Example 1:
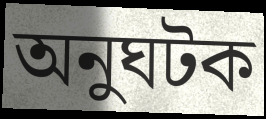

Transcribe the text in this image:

অনুঘটক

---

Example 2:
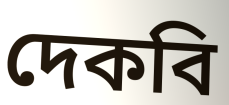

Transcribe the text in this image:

দেকবি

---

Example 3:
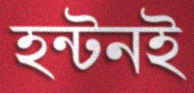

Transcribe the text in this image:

হন্টনই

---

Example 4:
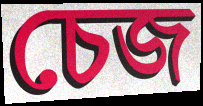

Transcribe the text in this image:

চেজ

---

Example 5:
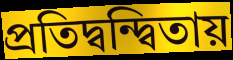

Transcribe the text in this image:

প্রতিদ্বন্দ্বিতায়